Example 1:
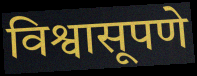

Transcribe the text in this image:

विश्वासूपणे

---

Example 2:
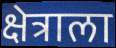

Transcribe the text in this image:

क्षेत्राला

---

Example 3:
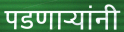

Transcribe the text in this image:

पडणाऱ्यांनी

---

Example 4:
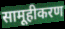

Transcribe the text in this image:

सामूहीकरण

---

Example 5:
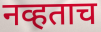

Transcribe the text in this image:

नव्हताच